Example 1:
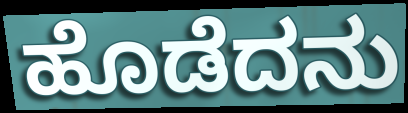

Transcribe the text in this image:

ಹೊಡೆದನು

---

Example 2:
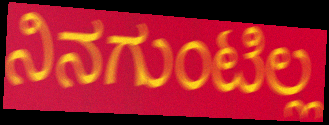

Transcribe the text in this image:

ನಿನಗುಂಟಿಲ್ಲ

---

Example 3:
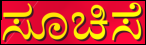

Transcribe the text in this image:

ಸೂಚಿಸೆ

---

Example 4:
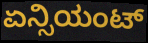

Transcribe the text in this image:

ಏನ್ಸಿಯಂಟ್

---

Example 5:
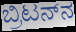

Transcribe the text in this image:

ಬ್ರಿಟನ್‌ನ